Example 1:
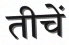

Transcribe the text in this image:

तीचें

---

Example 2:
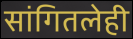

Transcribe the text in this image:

सांगितलेही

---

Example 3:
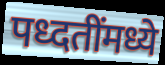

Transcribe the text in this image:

पध्दतींमध्ये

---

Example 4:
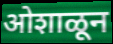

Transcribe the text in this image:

ओशाळून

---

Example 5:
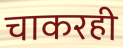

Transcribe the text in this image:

चाकरही